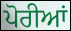
ਪੋਰੀਆਂ